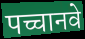
पच्चानवे